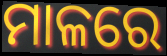
ମାଳରେ